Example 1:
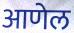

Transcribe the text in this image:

आणेल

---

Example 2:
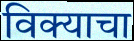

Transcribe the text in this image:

विक्याचा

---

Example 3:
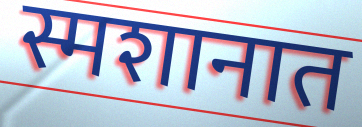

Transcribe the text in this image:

स्मशानात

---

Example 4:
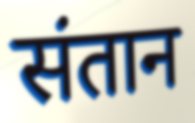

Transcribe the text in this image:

संतान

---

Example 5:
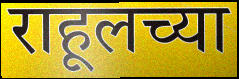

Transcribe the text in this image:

राहूलच्या